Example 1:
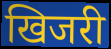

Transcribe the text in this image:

खिजरी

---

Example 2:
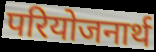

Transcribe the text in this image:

परियोजनार्थ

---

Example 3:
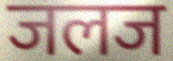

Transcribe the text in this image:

जलज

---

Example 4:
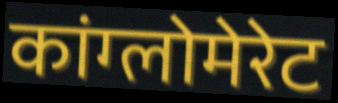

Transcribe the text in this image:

कांग्लोमेरेट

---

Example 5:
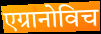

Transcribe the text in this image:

एग्रानोविच